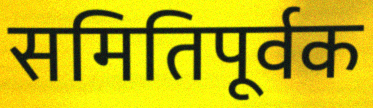
समितिपूर्वक